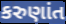
કરુણાંત